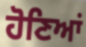
ਹੋਣਿਆਂ